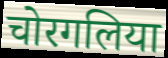
चोरगलिया